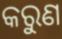
କରୁଣ